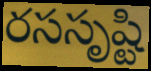
రససృష్టి